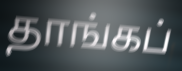
தாங்கப்